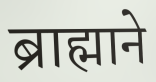
ब्राह्माने